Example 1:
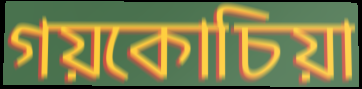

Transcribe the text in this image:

গয়কোচিয়া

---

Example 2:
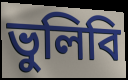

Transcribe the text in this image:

ভুলিবি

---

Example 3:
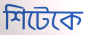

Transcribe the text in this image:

শিটেকে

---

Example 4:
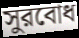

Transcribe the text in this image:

সুরবোধ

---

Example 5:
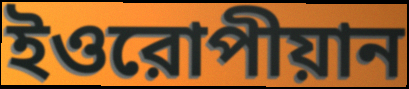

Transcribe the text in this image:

ইওরোপীয়ান